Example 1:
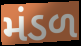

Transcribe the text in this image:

મંડળ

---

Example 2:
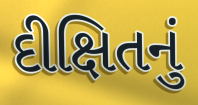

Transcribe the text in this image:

દીક્ષિતનું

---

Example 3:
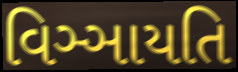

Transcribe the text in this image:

વિઞ્ઞાયતિ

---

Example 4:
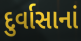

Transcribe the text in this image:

દુર્વાસાનાં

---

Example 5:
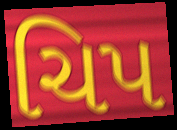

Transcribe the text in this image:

ચિપ